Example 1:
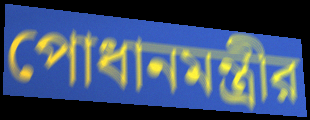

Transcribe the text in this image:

পোধানমন্ত্রীর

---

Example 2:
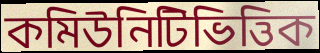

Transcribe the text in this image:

কমিউনিটিভিত্তিক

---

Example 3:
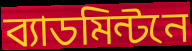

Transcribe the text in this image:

ব্যাডমিন্টনে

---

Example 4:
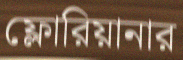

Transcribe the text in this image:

ফ্লোরিয়ানার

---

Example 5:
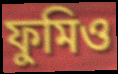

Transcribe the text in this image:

ফুমিও